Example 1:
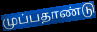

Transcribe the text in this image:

முப்பதாண்டு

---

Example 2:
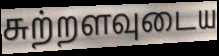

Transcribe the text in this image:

சுற்றளவுடைய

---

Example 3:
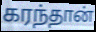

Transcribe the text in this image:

கரந்தான்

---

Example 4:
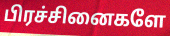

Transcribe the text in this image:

பிரச்சினைகளே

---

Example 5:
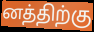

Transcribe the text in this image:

னத்திற்கு